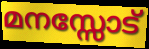
മനസ്സോട്